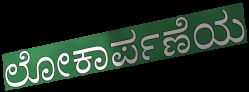
ಲೋಕಾರ್ಪಣೆಯ